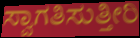
ಸ್ವಾಗತಿಸುತ್ತೀರಿ